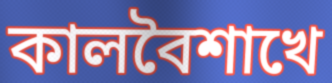
কালবৈশাখে